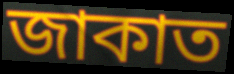
জাকাত